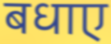
बधाए